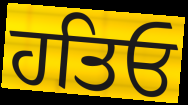
ਹਤਿਓ